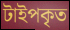
টাইপকৃত